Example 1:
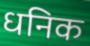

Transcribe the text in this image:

धनिक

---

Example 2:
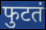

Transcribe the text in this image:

फुटतं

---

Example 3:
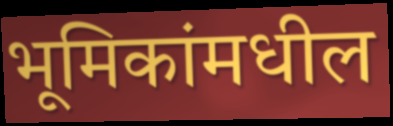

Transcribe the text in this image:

भूमिकांमधील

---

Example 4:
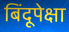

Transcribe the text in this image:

बिंदूपेक्षा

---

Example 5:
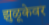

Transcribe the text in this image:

झुळूकेवर